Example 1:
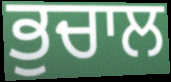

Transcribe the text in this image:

ਭੁਚਾਲ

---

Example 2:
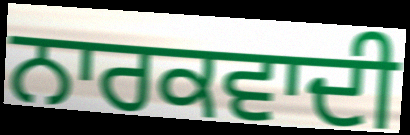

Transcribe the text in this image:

ਨਾਰਕਵਾਦੀ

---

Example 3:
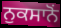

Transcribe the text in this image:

ਨੁਕਸਾਨੋਂ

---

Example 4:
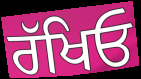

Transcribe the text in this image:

ਰੱਖਿਓ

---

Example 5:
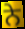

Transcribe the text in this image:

ਨੇ